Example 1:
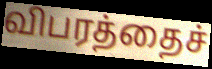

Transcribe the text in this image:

விபரத்தைச்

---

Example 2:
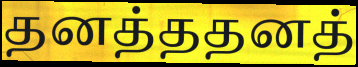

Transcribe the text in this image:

தனத்ததனத்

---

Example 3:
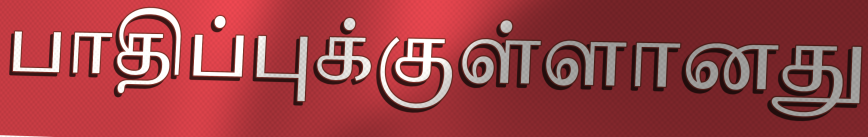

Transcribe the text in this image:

பாதிப்புக்குள்ளானது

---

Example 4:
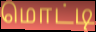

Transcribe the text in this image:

மொட்டி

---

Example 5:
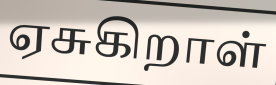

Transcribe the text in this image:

ஏசுகிறாள்